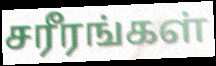
சரீரங்கள்